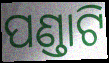
ପଣ୍ଡାଟି